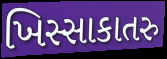
ખિસ્સાકાતરુ